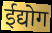
ईद्योग